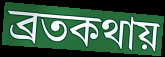
ব্রতকথায়